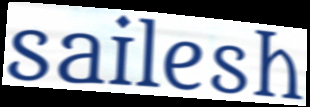
sailesh